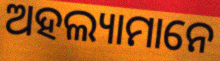
ଅହଲ୍ୟାମାନେ